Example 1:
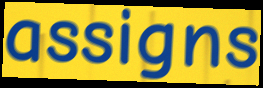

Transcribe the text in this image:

assigns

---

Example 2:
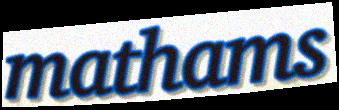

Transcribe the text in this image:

mathams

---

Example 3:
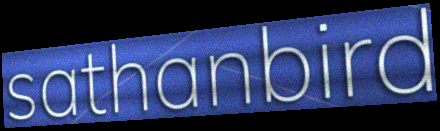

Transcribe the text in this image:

sathanbird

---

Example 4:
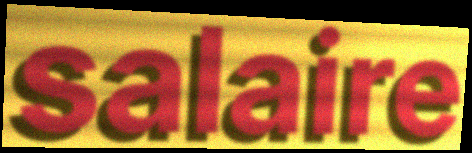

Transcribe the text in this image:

salaire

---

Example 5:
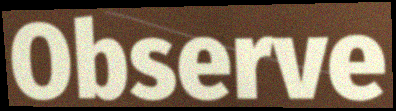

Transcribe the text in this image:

Observe